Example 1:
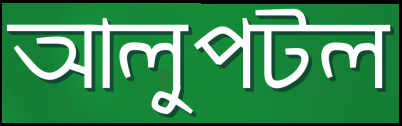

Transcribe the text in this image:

আলুপটল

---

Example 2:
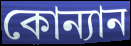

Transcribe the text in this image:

কোন্যান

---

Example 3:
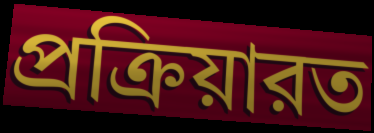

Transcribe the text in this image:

প্রক্রিয়ারত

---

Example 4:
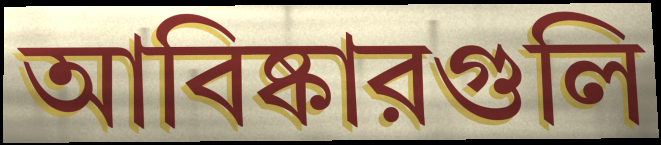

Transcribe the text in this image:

আবিষ্কারগুলি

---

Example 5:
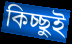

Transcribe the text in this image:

কিচ্ছুই